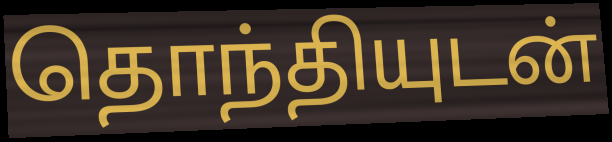
தொந்தியுடன்